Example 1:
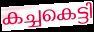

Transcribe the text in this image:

കച്ചകെട്ടി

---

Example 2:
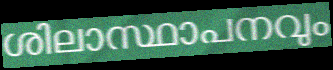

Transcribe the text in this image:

ശിലാസ്ഥാപനവും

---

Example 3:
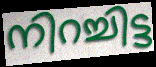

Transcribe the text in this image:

നിറച്ചിട്ട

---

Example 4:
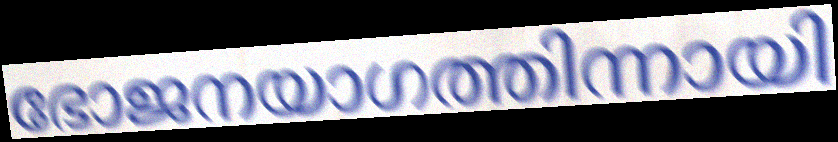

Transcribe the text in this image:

ഭോജനയാഗത്തിന്നായി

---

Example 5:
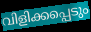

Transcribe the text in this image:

വിളിക്കപ്പെടും